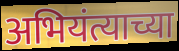
अभियंत्याच्या